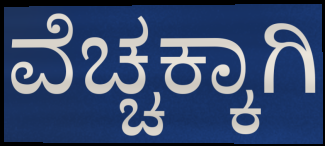
ವೆಚ್ಚಕ್ಕಾಗಿ